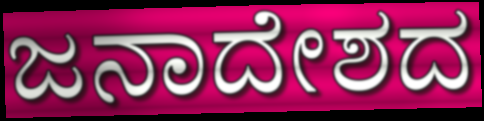
ಜನಾದೇಶದ